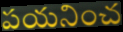
పయనించ